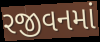
રજીવનમાં